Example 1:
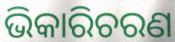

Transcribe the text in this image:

ଭିକାରିଚରଣ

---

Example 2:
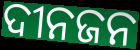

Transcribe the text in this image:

ଦୀନଜନ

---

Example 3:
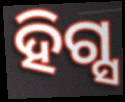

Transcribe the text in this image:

ହିଗ୍ସ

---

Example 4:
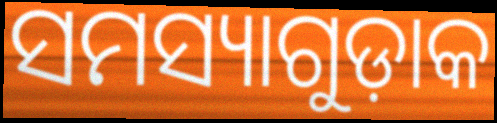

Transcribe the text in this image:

ସମସ୍ୟାଗୁଡ଼ାକ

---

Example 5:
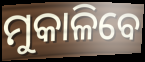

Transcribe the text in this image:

ମୁକାଳିବେ